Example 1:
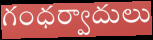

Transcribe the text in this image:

గంధర్వాదులు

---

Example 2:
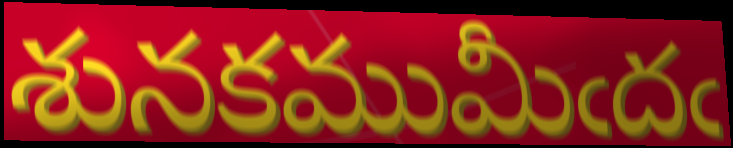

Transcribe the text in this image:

శునకముమీఁదఁ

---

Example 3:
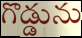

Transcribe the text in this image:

గొడ్డును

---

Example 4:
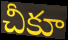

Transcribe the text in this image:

చీకూ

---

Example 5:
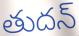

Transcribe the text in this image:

తుదన్